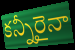
కన్నీరైనా